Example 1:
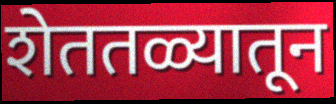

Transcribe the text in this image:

शेततळ्यातून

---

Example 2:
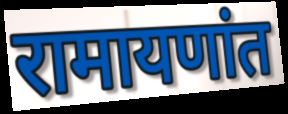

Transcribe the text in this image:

रामायणांत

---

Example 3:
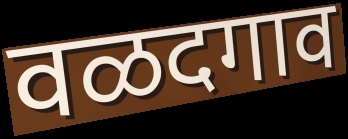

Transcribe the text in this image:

वळदगाव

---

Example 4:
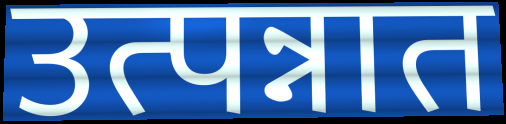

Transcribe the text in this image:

उत्पन्नात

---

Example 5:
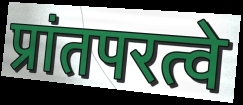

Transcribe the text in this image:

प्रांतपरत्वे